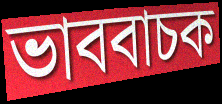
ভাববাচক